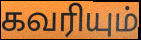
கவரியும்